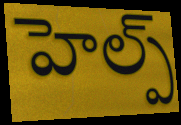
హెల్ప్